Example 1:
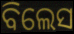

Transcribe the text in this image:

ବିଲେସ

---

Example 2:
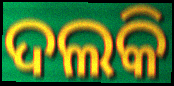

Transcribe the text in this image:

ଦଲକି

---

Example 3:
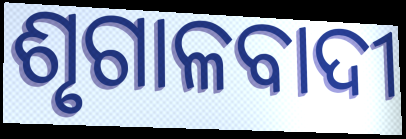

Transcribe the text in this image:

ଶୃଗାଳବାଦୀ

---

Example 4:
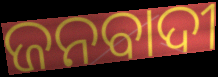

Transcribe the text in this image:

ଜନବାଦୀ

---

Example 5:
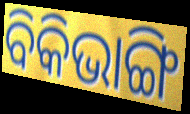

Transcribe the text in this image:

ବିକିଭାଙ୍ଗି